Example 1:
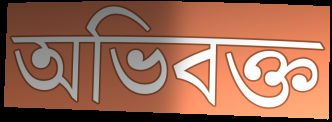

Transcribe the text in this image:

অভিবক্ত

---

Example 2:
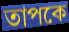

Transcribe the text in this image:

তাপকে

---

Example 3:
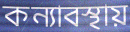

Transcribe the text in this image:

কন্যাবস্থায়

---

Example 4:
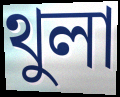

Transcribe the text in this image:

থুলা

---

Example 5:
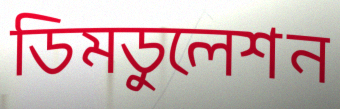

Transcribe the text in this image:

ডিমডুলেশন